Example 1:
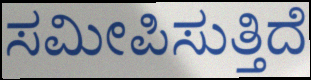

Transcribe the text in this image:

ಸಮೀಪಿಸುತ್ತಿದೆ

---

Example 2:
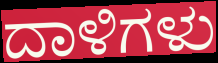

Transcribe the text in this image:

ದಾಳಿಗಳು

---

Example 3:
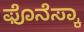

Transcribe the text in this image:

ಫೊನೆಸ್ಕಾ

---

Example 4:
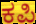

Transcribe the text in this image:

ಕಪಿ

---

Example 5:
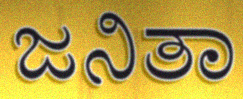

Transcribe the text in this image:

ಜನಿತಾ